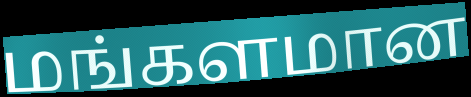
மங்களமான